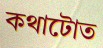
কথাটোত